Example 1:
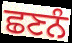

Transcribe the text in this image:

ਛਣਨੰ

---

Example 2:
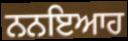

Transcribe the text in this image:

ਨਨਇਆਹ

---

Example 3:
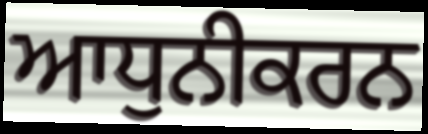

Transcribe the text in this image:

ਆਧੁਨੀਕਰਨ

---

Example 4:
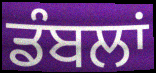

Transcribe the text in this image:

ਡੰਬਲਾਂ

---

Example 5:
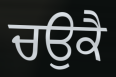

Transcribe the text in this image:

ਚਉਕੈ